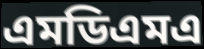
এমডিএমএ